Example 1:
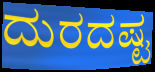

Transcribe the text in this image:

ದುರದಷ್ಟ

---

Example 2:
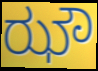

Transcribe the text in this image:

ಝೌ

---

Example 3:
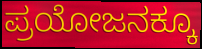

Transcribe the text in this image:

ಪ್ರಯೋಜನಕ್ಕೂ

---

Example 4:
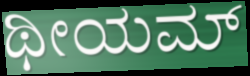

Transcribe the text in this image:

ಥೀಯಮ್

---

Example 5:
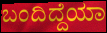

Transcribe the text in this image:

ಬಂದಿದ್ದೆಯಾ